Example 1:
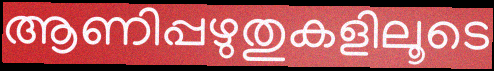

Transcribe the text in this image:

ആണിപ്പഴുതുകളിലൂടെ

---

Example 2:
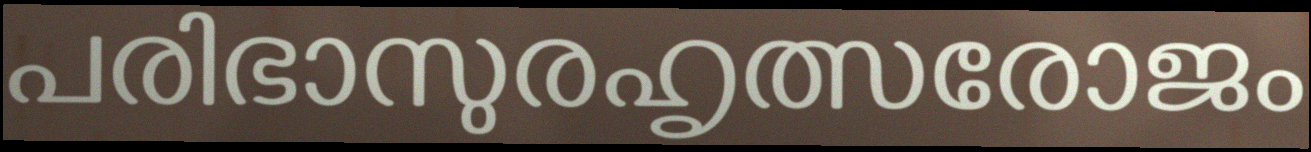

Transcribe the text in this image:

പരിഭാസുരഹൃത്സരോജം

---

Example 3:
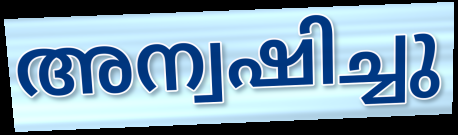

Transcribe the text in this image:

അന്വഷിച്ചു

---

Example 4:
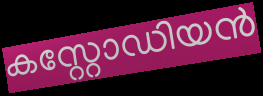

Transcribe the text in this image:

കസ്റ്റോഡിയൻ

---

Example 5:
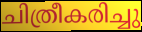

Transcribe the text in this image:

ചിത്രീകരിച്ചു